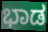
ಭಾಡ